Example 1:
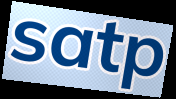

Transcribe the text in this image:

satp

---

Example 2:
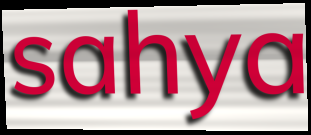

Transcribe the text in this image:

sahya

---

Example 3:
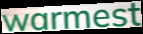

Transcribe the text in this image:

warmest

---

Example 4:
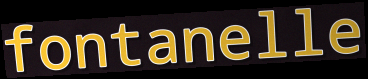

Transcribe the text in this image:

fontanelle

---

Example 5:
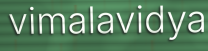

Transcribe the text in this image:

vimalavidya